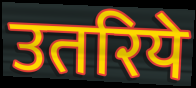
उतरिये